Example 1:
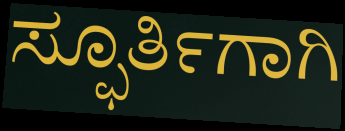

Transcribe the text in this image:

ಸ್ಫೂರ್ತಿಗಾಗಿ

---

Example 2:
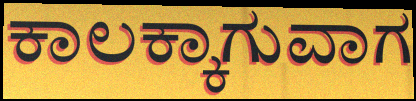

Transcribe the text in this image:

ಕಾಲಕ್ಕಾಗುವಾಗ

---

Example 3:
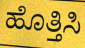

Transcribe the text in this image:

ಹೊತ್ತಿಸಿ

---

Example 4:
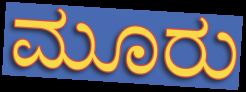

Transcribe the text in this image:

ಮೂರು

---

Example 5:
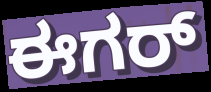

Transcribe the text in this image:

ಈಗರ್